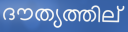
ദൗത്യത്തില്